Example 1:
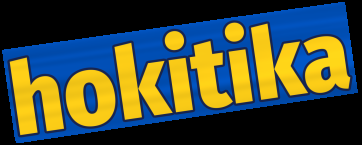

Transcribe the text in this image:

hokitika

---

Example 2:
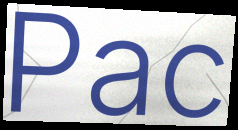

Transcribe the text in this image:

Pac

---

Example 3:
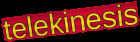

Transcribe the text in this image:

telekinesis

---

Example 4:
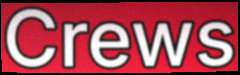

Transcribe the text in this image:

Crews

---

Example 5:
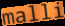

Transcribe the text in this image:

malli